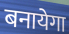
बनायेगा